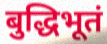
बुद्धिभूतं